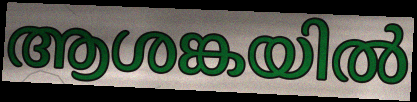
ആശങ്കയിൽ